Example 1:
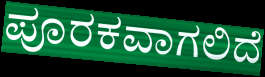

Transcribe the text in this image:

ಪೂರಕವಾಗಲಿದೆ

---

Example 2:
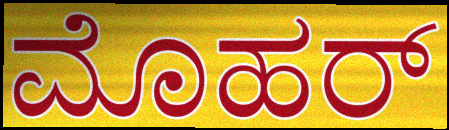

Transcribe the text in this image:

ಮೊಹರ್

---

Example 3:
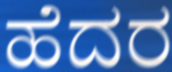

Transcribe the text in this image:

ಹೆದರ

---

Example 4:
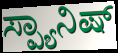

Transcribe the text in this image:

ಸ್ಪ್ಯಾನಿಷ್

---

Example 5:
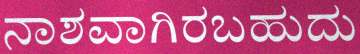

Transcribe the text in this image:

ನಾಶವಾಗಿರಬಹುದು